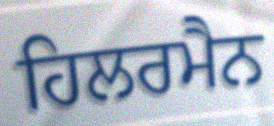
ਹਿਲਰਮੈਨ